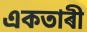
একতাৰী